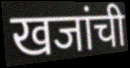
खजांची